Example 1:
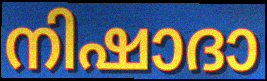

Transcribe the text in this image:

നിഷാദാ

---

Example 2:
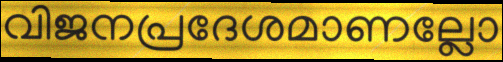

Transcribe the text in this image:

വിജനപ്രദേശമാണല്ലോ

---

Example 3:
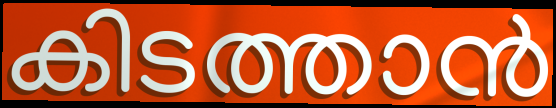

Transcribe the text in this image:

കിടത്താൻ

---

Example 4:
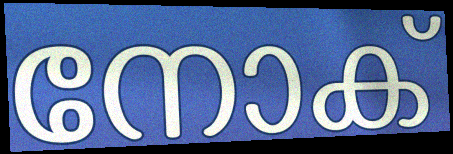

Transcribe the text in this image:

നോക്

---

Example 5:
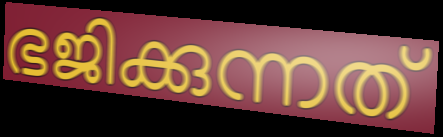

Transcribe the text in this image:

ഭജിക്കുന്നത്